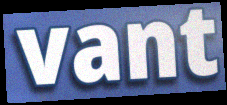
vant